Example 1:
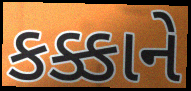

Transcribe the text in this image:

કક્કાને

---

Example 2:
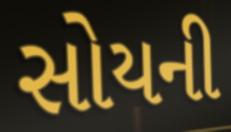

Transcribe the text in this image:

સોયની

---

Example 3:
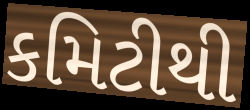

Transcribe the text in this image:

કમિટીથી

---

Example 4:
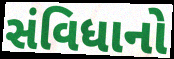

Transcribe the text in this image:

સંવિધાનો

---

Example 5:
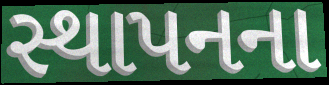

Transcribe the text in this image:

સ્થાપનના